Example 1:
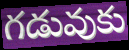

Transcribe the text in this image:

గడువుకు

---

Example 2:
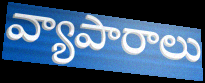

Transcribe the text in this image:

వ్యాపారాలు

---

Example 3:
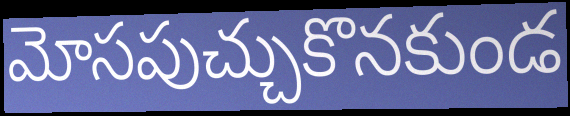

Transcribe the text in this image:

మోసపుచ్చుకొనకుండ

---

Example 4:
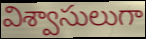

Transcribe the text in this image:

విశ్వాసులుగా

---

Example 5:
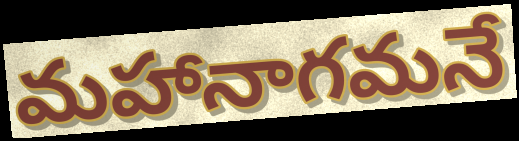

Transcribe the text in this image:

మహానాగమనే